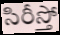
సిరీస్తో